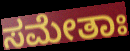
ಸಮೇತಾಃ